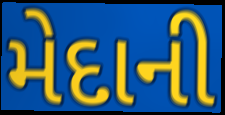
મેદાની